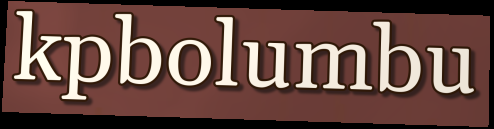
kpbolumbu